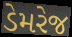
ડેમરેજ